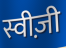
स्वीज़ी